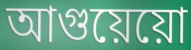
আগুয়েয়ো